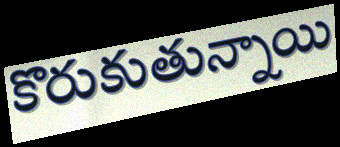
కొరుకుతున్నాయి